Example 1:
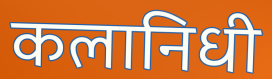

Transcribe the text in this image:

कलानिधी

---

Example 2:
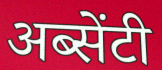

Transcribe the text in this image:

अब्सेंटी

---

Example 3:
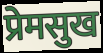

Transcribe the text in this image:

प्रेमसुख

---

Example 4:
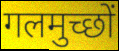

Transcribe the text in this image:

गलमुच्छों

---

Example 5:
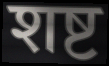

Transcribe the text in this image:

शष्ट